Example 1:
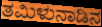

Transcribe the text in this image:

ತಮಿಳುನಾಡಿನ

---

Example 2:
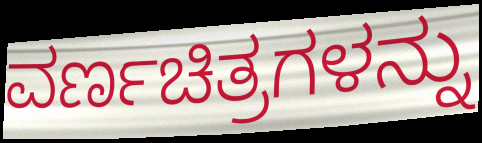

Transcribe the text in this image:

ವರ್ಣಚಿತ್ರಗಳನ್ನು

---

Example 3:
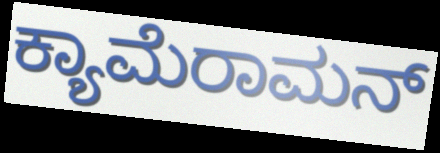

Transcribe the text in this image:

ಕ್ಯಾಮೆರಾಮನ್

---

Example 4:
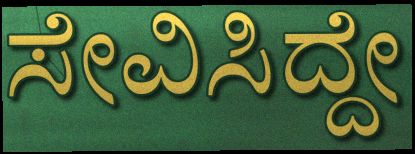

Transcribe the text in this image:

ಸೇವಿಸಿದ್ದೇ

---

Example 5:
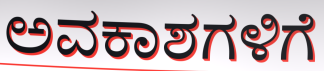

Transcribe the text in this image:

ಅವಕಾಶಗಳಿಗೆ